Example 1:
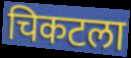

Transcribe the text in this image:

चिकटला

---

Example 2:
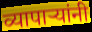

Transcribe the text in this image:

व्यापाऱ्यांनी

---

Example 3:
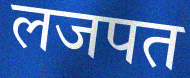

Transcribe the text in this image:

लजपत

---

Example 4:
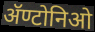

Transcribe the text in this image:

ॲण्टोनिओ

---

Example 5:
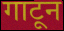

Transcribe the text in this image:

गाटून